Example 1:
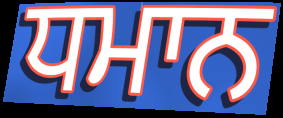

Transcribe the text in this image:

ਧਮਾਨ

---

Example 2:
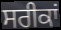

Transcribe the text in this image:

ਸਰੀਕਾਂ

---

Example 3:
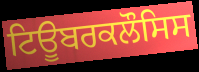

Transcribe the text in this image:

ਟਿਊਬਰਕਲੌਸਿਸ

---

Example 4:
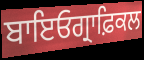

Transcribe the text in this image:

ਬਾਇਓਗ੍ਰਾਫ਼ਿਕਲ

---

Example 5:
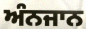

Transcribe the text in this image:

ਅੰਨਜਾਨ